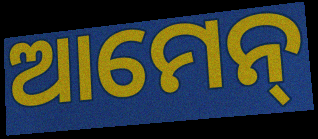
ଆମେନ୍